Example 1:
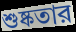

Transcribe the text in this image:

শুষ্কতার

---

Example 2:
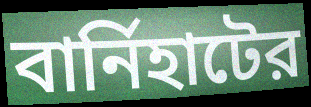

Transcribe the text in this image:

বার্নিহাটের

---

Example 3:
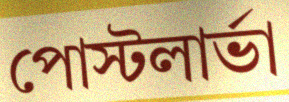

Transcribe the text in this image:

পোস্টলার্ভা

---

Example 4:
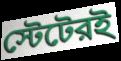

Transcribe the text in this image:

স্টেটেরই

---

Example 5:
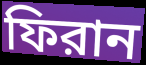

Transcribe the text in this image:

ফিরান